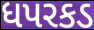
ધપરકડ